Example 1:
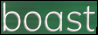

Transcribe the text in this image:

boast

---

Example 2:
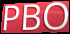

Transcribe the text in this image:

PBO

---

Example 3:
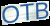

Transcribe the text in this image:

OTB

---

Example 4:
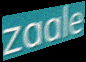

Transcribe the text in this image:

zaale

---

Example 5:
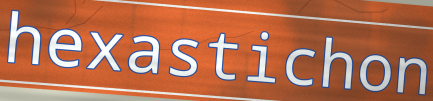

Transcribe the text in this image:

hexastichon